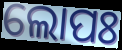
ଲୋପଃ